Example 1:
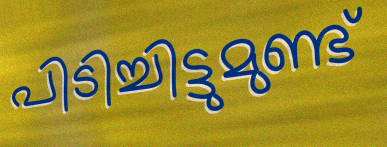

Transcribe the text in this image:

പിടിച്ചിട്ടുമുണ്ട്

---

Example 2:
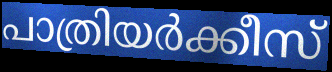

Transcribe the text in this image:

പാത്രിയർക്കീസ്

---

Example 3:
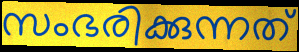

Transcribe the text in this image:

സംഭരിക്കുന്നത്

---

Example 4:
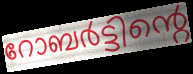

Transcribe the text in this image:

റോബർട്ടിന്റെ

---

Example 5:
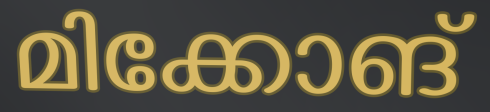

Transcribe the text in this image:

മിക്കോങ്